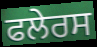
ਫਲੇਰਸ